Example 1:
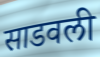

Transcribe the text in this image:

साडवली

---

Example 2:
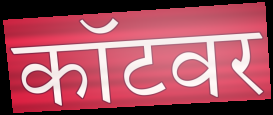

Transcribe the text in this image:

कॉटवर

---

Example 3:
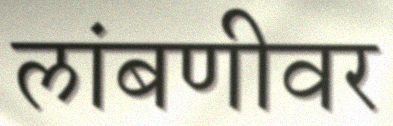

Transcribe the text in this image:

लांबणीवर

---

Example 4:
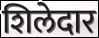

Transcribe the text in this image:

शिलेदार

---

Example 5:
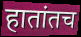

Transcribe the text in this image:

हातांतच